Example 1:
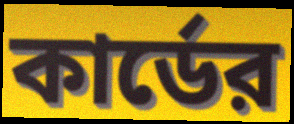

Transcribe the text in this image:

কার্ডের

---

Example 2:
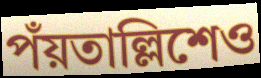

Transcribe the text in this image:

পঁয়তাল্লিশেও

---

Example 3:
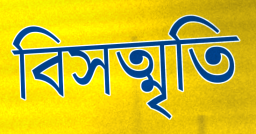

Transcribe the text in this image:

বিসত্মৃতি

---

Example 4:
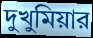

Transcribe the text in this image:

দুখুমিয়ার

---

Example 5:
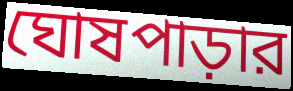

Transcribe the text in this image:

ঘোষপাড়ার